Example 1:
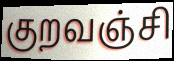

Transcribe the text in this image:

குறவஞ்சி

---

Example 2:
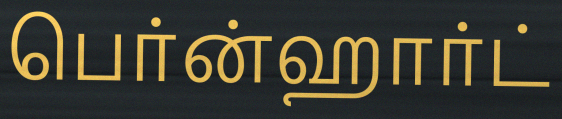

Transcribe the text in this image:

பெர்ன்ஹார்ட்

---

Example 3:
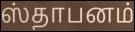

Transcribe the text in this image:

ஸ்தாபனம்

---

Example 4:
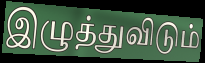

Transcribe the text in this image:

இழுத்துவிடும்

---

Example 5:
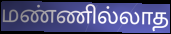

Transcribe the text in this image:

மண்ணில்லாத